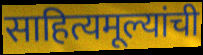
साहित्यमूल्यांची